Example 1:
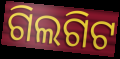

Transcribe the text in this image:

ଗିଲଗିଟ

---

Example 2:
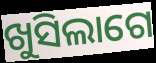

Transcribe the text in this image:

ଖୁସିଲାଗେ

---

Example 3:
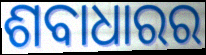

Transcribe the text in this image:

ଶବାଧାରର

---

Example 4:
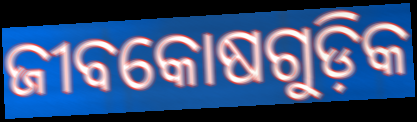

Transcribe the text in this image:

ଜୀବକୋଷଗୁଡ଼ିକ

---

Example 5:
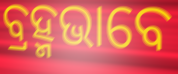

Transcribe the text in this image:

ବ୍ରହ୍ମଭାବେ